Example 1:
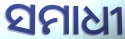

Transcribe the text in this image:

ସମାଧୀ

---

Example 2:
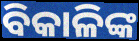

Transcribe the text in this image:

ବିକାଳିଙ୍କ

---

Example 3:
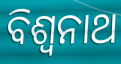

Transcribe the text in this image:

ବିଶ୍ୱନାଥ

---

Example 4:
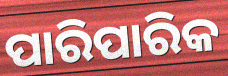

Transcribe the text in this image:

ପାରିପାରିକ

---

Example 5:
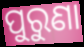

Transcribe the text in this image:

ପୁରୁଣା